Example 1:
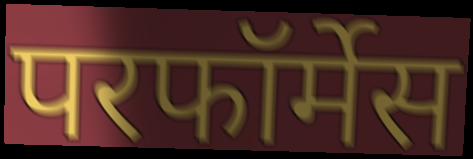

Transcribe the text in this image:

परफॉर्मेस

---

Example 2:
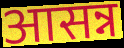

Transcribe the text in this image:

आसन्न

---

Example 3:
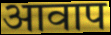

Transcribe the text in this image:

आवाप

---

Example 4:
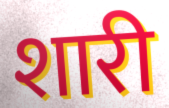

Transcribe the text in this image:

शारी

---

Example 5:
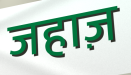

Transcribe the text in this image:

जहाज़